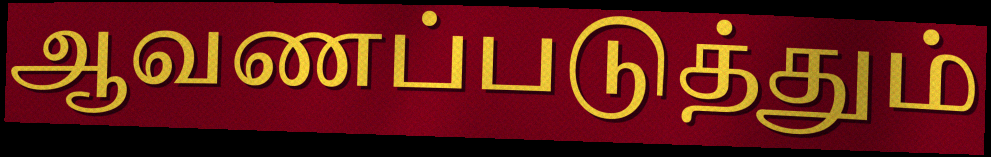
ஆவணப்படுத்தும்